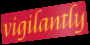
vigilantly